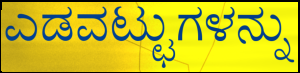
ಎಡವಟ್ಟುಗಳನ್ನು